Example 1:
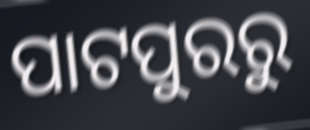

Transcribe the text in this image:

ପାଟପୁରରୁ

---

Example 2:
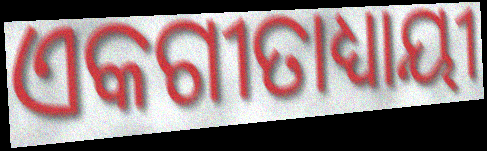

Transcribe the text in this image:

ଏକଗୀତାଧ୍ୟାୟୀ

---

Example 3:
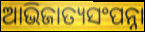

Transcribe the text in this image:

ଆଭିଜାତ୍ୟସଂପନ୍ନା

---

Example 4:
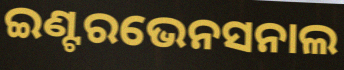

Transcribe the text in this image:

ଇଣ୍ଟରଭେନସନାଲ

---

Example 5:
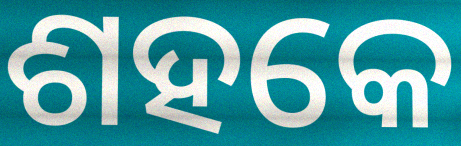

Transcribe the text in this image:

ଶହକେ